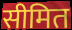
सीमित